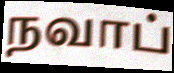
நவாப்